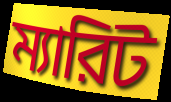
ম্যারিট